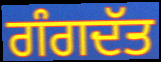
ਗੰਗਦੱਤ